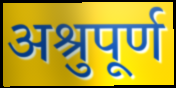
अश्रुपूर्ण